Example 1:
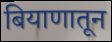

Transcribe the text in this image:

बियाणातून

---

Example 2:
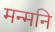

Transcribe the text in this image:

मन्मनि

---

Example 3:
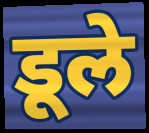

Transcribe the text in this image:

डूले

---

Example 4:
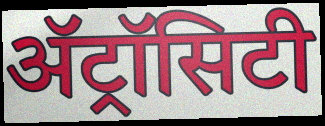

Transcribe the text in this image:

ॲट्रॉसिटी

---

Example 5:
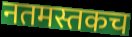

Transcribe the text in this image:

नतमस्तकच